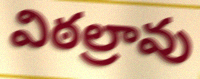
విఠల్రావు